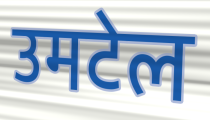
उमटेल